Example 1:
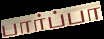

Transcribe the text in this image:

பார்ப்பா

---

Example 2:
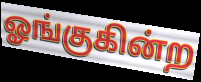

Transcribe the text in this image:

ஓங்குகின்ற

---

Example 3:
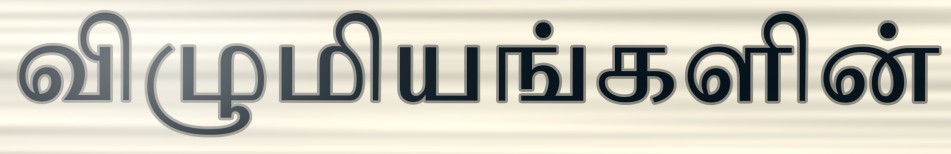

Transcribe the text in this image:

விழுமியங்களின்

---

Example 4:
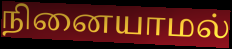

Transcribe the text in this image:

நினையாமல்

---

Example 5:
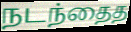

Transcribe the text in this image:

நடந்தைத